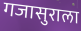
गजासुराला